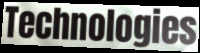
Technologies